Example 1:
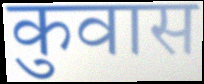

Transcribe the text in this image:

कुवास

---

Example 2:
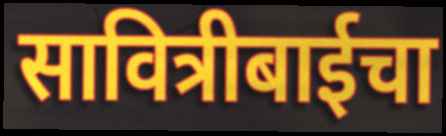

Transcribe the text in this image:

सावित्रीबाईचा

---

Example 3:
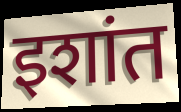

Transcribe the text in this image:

इशांत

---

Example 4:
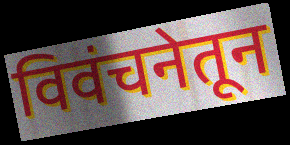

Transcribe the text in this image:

विवंचनेतून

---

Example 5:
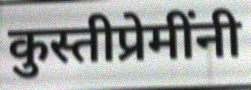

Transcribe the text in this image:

कुस्तीप्रेमींनी